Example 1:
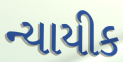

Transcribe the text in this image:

ન્યાયીક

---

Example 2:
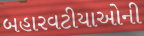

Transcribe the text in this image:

બહારવટીયાઓની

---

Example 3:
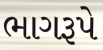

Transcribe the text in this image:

ભાગરૂપે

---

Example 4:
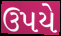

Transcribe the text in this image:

ઉપયે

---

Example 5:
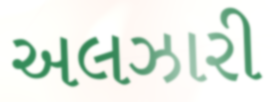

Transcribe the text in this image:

અલઝારી